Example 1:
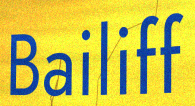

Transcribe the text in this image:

Bailiff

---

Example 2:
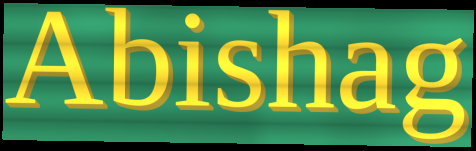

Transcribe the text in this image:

Abishag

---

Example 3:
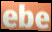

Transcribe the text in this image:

ebe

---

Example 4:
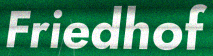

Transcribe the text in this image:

Friedhof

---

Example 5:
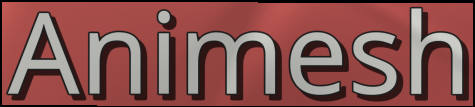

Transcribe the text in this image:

Animesh